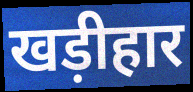
खड़ीहार